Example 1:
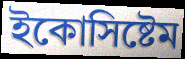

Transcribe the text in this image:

ইকোসিষ্টেম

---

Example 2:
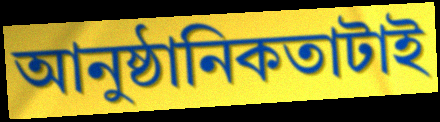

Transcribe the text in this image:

আনুষ্ঠানিকতাটাই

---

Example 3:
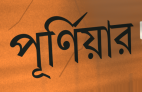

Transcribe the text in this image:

পূর্ণিয়ার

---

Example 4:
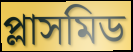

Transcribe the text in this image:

প্লাসমিড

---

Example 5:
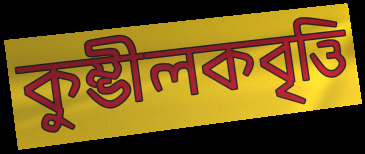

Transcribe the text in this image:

কুম্ভীলকবৃত্তি